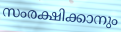
സംരക്ഷിക്കാനും